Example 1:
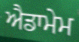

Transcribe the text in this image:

ਐਡਾਮੇਮ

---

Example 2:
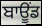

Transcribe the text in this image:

ਬਾਊਂਡ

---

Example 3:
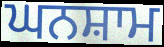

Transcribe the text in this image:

ਘਨਸ਼ਾਮ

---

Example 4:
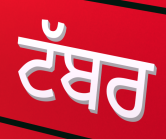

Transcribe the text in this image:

ਟੱਬਰ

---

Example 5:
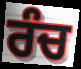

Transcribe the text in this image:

ਰੰਚ